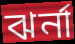
ঝর্না